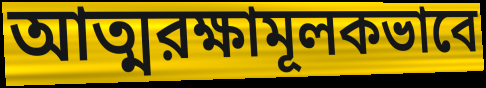
আত্মরক্ষামূলকভাবে